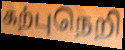
கற்புநெறி